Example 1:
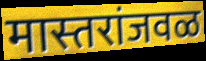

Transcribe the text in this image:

मास्तरांजवळ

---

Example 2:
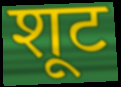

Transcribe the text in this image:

शूट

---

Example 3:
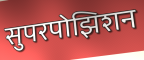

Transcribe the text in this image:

सुपरपोझिशन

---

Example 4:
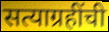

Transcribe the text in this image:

सत्याग्रहींची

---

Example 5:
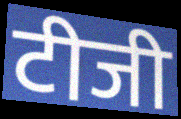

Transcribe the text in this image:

टीजी